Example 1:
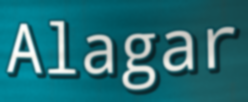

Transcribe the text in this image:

Alagar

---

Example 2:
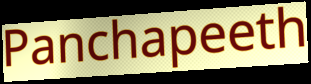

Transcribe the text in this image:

Panchapeeth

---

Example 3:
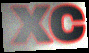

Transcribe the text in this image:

XC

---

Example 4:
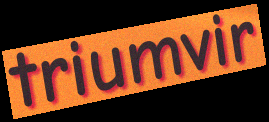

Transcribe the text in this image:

triumvir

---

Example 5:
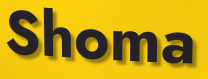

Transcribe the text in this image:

Shoma